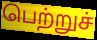
பெற்றுச்